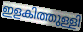
ഇളകിത്തുള്ളി